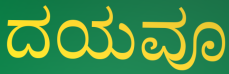
ದಯವೂ